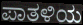
ಪಾತಳಿಯ